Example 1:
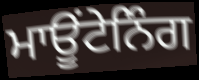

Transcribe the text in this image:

ਮਾਊਂਟੇਨਿੰਗ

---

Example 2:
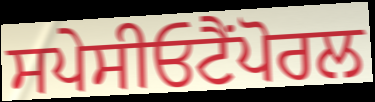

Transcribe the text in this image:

ਸਪੇਸੀਓਟੈਂਪੋਰਲ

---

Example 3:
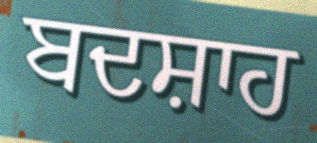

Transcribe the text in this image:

ਬਦਸ਼ਾਹ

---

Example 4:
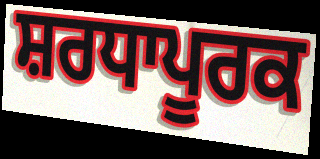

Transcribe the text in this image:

ਸ਼ਰਧਾਪੂਰਕ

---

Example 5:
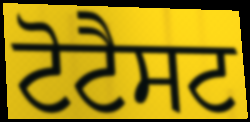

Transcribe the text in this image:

ਟੋਟੈਸਟ